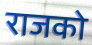
राजको